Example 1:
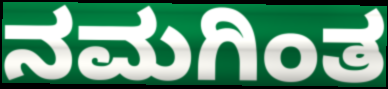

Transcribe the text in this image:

ನಮಗಿಂತ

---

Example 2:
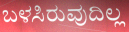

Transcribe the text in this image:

ಬಳಸಿರುವುದಿಲ್ಲ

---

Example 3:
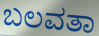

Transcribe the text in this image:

ಬಲವತಾ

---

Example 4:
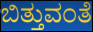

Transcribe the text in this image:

ಬಿತ್ತುವಂತೆ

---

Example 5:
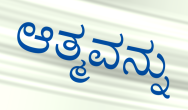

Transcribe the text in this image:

ಆತ್ಮವನ್ನು